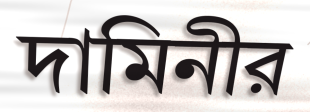
দামিনীর